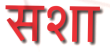
सशा